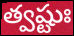
త్వష్టుః